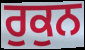
ਰੁਕੁਨ